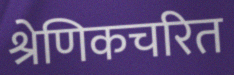
श्रेणिकचरित